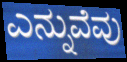
ಎನ್ನುವೆವು